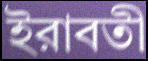
ইরাবতী